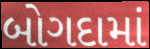
બોગદામાં